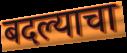
बदल्याचा